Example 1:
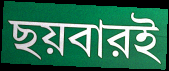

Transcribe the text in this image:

ছয়বারই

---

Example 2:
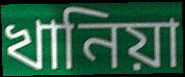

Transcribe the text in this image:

খানিয়া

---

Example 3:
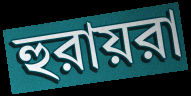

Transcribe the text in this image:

হুরায়রা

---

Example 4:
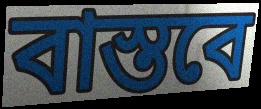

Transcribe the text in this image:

বাস্তবে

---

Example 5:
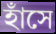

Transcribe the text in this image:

হাঁসে